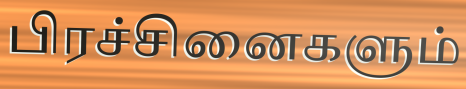
பிரச்சினைகளும்